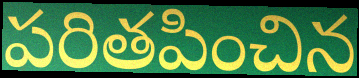
పరితపించిన